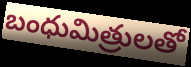
బంధుమిత్రులతో